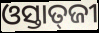
ଓସ୍ତାତ୍‌ଜୀ